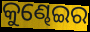
କୁଣ୍ଢେଇର